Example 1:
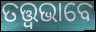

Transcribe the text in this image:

ତତ୍ତ୍ଵଭାବେ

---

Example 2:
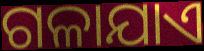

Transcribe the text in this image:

ଗଳାଯାଏ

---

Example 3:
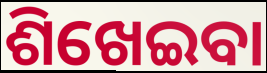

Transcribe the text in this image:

ଶିଖେଇବା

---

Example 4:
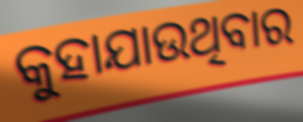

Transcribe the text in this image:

କୁହାଯାଉଥିବାର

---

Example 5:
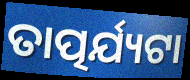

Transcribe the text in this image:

ତାତ୍ପର୍ଯ୍ୟଟା